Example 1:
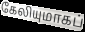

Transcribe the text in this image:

கேலியுமாகப்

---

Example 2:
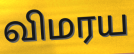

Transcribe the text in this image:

விமரய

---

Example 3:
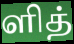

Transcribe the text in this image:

ளித்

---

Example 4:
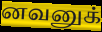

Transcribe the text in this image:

னவனுக்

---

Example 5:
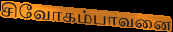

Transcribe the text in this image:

சிவோகம்பாவனை